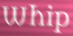
Whip